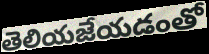
తెలియజేయడంతో